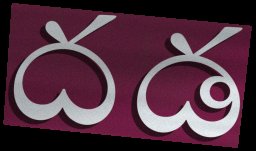
దడ